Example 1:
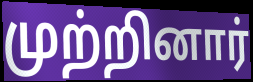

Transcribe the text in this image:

முற்றினார்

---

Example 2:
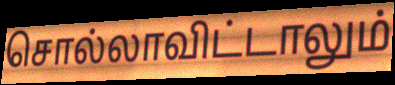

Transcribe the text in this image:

சொல்லாவிட்டாலும்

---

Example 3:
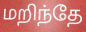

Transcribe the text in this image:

மறிந்தே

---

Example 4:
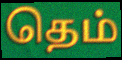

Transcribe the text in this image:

தெம்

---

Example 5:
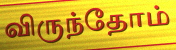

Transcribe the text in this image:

விருந்தோம்